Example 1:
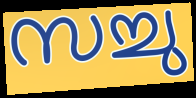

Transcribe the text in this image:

സച്ചു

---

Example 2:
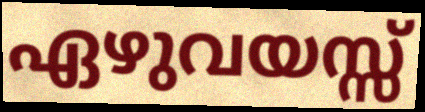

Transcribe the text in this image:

ഏഴുവയസ്സ്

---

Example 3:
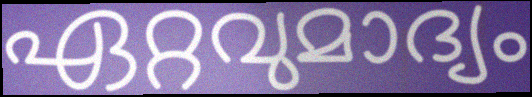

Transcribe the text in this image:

ഏറ്റവുമാദ്യം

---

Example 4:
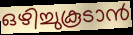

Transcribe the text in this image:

ഒഴിച്ചുകൂടാൻ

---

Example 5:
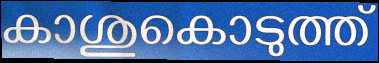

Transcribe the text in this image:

കാശുകൊടുത്ത്